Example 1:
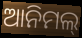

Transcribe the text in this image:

ଆନିମଲ୍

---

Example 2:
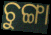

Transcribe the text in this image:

ଚୁଙ୍ଗା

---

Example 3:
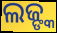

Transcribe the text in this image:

ଲଜ୍ଙ୍କ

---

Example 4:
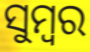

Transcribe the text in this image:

ସୁମ୍ବର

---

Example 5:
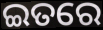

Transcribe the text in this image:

ଇତରେ